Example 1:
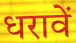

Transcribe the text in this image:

धरावें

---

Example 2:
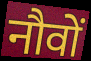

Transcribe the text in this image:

नौवों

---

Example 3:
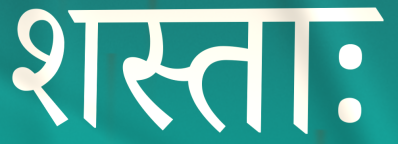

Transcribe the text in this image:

शस्ताः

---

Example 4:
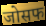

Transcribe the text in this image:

जोसफ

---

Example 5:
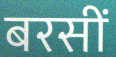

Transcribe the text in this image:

बरसीं